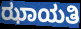
ಝಾಯತಿ